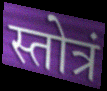
स्तोत्रं